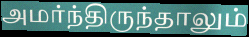
அமர்ந்திருந்தாலும்